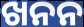
ଖନନ